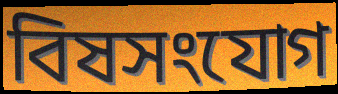
বিষসংযোগ